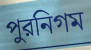
পুরনিগম